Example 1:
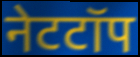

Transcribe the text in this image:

नेटटॉप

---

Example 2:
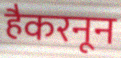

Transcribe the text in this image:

हैकरनून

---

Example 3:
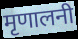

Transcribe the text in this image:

मृणालनी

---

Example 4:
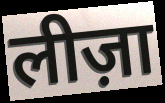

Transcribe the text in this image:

लीज़ा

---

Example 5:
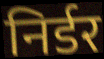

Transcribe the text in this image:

निर्डर